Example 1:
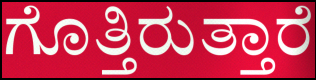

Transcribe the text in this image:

ಗೊತ್ತಿರುತ್ತಾರೆ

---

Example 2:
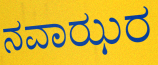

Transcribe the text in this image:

ನವಾಝರ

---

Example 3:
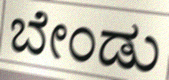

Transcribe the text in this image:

ಬೇಂಡು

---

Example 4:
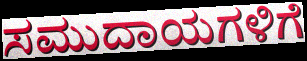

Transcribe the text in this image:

ಸಮುದಾಯಗಳಿಗೆ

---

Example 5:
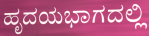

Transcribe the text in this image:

ಹೃದಯಭಾಗದಲ್ಲಿ